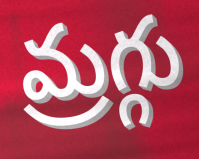
మ్రగ్గు